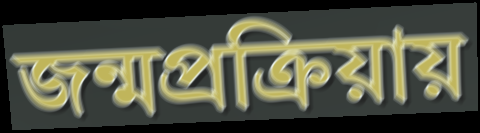
জন্মপ্রক্রিয়ায়